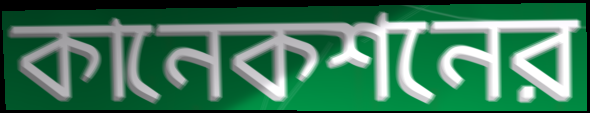
কানেকশনের